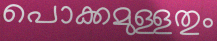
പൊക്കമുള്ളതും